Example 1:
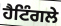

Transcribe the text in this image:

ਹੈਟਿੰਗਲੇ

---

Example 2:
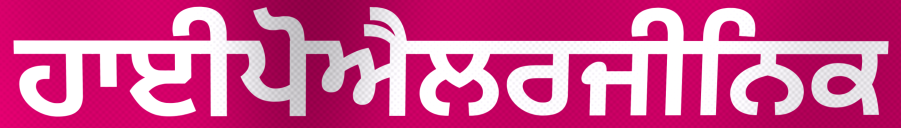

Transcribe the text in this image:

ਹਾਈਪੋਐਲਰਜੀਨਿਕ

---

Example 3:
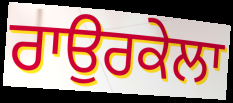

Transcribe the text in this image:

ਰਾਉਰਕੇਲਾ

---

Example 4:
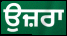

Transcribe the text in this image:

ਉਜ਼ਰਾ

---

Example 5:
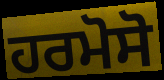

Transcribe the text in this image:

ਹਰਮੋਸੋ